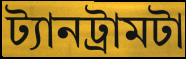
ট্যানট্রামটা